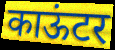
काऊंटर